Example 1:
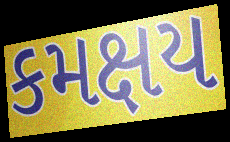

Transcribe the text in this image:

કમક્ષય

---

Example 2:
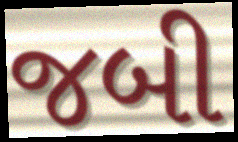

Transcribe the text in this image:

જબી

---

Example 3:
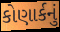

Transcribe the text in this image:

કોણાર્કનું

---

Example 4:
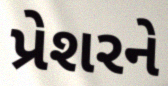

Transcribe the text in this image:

પ્રેશરને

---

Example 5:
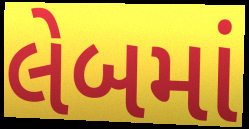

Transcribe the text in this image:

લેબમાં